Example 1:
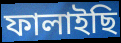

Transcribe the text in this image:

ফালাইছি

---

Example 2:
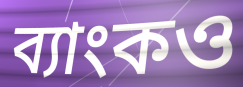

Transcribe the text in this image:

ব্যাংকও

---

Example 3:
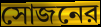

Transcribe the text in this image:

সোজনের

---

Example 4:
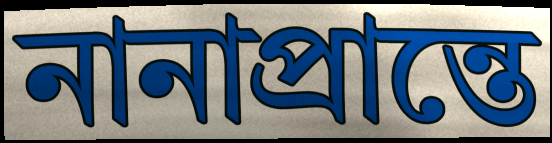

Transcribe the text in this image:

নানাপ্রান্তে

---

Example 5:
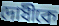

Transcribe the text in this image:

দোষীকে